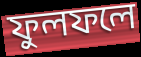
ফুলফলে